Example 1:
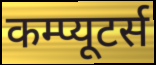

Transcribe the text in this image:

कम्प्यूटर्स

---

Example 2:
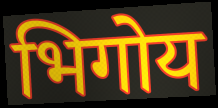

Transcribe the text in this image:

भिगोय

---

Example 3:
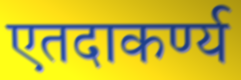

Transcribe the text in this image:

एतदाकर्ण्य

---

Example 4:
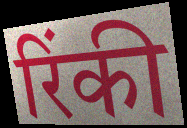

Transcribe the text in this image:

रिंकी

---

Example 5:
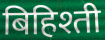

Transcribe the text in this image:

बिहिश्ती